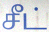
சீட்